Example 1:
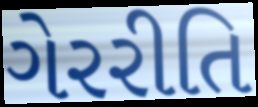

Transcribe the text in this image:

ગેરરીતિ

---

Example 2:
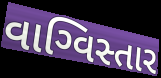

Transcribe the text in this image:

વાગ્વિસ્તાર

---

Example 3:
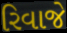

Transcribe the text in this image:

રિવાજે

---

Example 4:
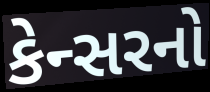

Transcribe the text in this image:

કેન્સરનો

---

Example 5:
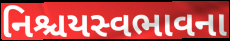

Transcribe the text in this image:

નિશ્ચયસ્વભાવના